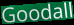
Goodall